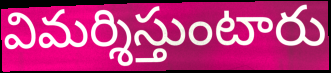
విమర్శిస్తుంటారు